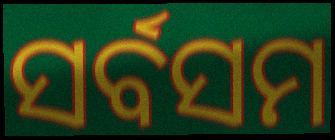
ସର୍ବସମ